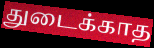
துடைக்காத